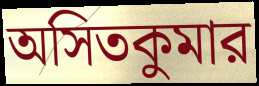
অসিতকুমার